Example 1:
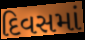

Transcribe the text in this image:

દિવસમાં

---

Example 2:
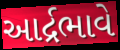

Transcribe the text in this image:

આર્દ્રભાવે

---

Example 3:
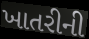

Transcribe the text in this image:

ખાતરીની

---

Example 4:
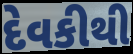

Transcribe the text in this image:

દેવકીથી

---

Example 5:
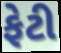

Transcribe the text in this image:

ફેટી